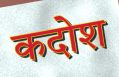
कदोश